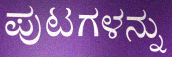
ಪುಟಗಳನ್ನು